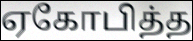
ஏகோபித்த